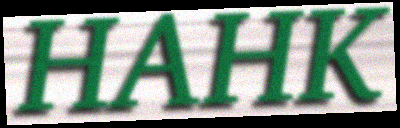
HAHK